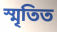
স্মৃতিত